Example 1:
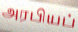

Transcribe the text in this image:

அரபியப்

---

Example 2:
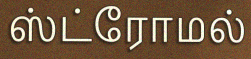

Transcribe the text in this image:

ஸ்ட்ரோமல்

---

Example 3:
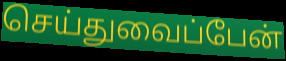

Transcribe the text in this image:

செய்துவைப்பேன்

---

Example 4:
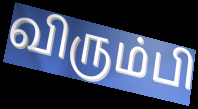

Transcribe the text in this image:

விரும்பி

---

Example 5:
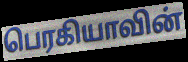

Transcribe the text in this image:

பெரகியாவின்